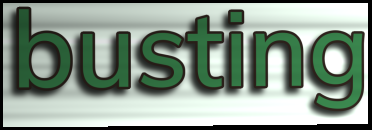
busting